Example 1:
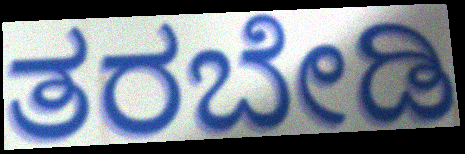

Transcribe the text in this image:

ತರಬೇಡಿ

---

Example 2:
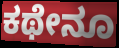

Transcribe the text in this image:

ಕಥೇನೂ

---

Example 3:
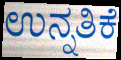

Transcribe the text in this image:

ಉನ್ನತಿಕೆ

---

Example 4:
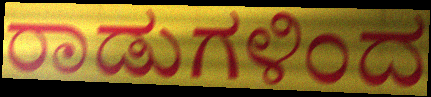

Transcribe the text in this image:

ರಾಡುಗಳಿಂದ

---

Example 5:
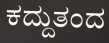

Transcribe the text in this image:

ಕದ್ದುತಂದ